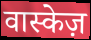
वास्केज़